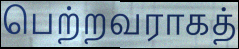
பெற்றவராகத்